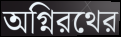
অগ্নিরথের